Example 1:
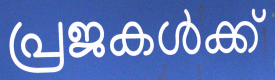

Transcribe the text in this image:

പ്രജകൾക്ക്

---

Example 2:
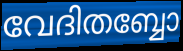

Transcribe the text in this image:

വേദിതബ്ബോ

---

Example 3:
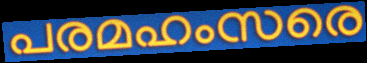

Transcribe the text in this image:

പരമഹംസരെ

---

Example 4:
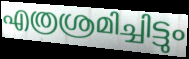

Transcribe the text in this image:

എത്രശ്രമിച്ചിട്ടും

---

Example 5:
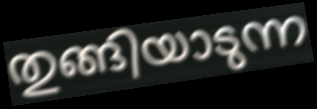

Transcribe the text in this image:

തുങ്ങിയാടുന്ന